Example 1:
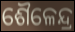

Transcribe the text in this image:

ଶୈଳେନ୍ଦ୍ର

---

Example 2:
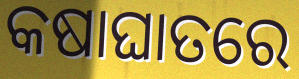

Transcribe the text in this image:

କଷାଘାତରେ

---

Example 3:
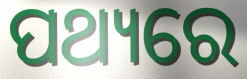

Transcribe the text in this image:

ପଥ୍ୟରେ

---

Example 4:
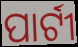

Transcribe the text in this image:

ପାର୍ଟୀ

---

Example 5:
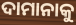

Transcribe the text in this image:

ଦାମାନାକୁ